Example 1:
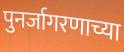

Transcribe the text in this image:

पुनर्जागरणाच्या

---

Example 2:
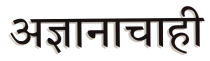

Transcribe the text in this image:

अज्ञानाचाही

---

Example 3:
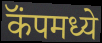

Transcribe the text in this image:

कॅंपमध्ये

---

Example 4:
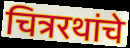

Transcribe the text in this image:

चित्ररथांचे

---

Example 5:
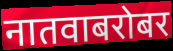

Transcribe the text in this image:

नातवाबरोबर